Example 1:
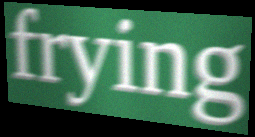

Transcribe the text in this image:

frying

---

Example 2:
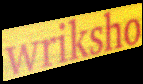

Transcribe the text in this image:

wriksho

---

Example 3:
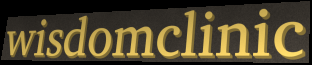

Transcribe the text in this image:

wisdomclinic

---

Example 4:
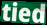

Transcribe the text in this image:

tied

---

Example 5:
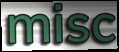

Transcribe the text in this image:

misc